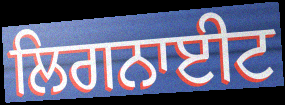
ਲਿਗਨਾਈਟ